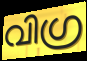
വിഗ്ര